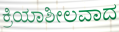
ಕ್ರಿಯಾಶೀಲವಾದ